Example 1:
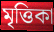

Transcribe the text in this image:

মৃত্তিকা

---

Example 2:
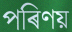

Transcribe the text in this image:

পৰিণয়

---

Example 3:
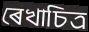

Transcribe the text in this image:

ৰেখাচিত্ৰ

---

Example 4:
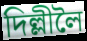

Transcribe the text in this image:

দিল্লীলৈ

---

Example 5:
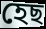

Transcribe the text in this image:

হেছ